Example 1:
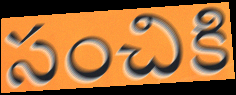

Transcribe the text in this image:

సంచికి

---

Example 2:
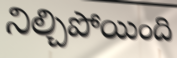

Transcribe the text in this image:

నిల్చిపోయింది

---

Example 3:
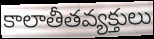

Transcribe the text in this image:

కాలాతీతవ్యక్తులు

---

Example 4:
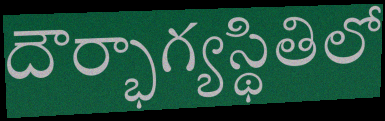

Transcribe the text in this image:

దౌర్భాగ్యస్థితిలో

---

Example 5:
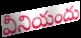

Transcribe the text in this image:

వీనియందు